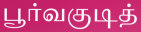
பூர்வகுடித்